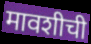
मावशीची